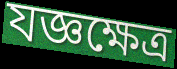
যজ্ঞক্ষেত্র